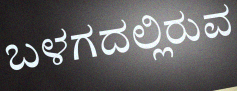
ಬಳಗದಲ್ಲಿರುವ